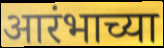
आरंभाच्या